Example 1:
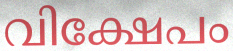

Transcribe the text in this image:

വിക്ഷേപം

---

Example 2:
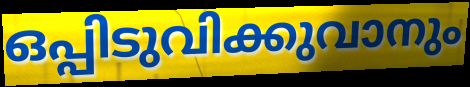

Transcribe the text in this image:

ഒപ്പിടുവിക്കുവാനും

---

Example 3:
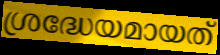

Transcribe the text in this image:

ശ്രദ്ധേയമായത്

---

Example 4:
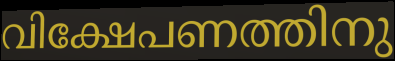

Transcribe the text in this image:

വിക്ഷേപണത്തിനു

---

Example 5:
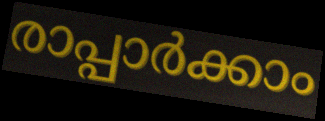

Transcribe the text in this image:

രാപ്പാർക്കാം